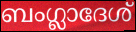
ബംഗ്ലാദേശ്